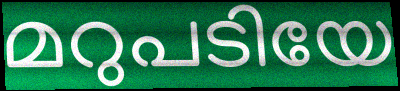
മറുപടിയേ